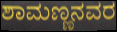
ಶಾಮಣ್ಣನವರ